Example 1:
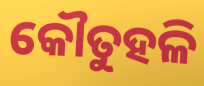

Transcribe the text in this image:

କୌତୁହଳି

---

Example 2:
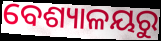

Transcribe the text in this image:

ବେଶ୍ୟାଳୟରୁ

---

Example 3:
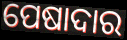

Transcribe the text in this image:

ପେଷାଦାର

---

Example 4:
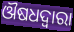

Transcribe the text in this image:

ଔଷଧଦ୍ବାରା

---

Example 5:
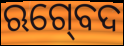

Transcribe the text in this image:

ଋଗ୍‍ବେଦ